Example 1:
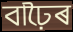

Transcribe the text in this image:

বাঢ়ৈৰ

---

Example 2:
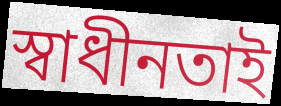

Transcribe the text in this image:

স্বাধীনতাই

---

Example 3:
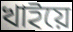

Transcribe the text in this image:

খাইয়ে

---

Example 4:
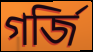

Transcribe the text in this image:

গৰ্জি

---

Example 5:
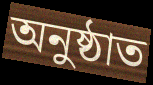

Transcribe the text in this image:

অনুষ্ঠাত